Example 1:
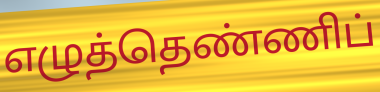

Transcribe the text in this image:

எழுத்தெண்ணிப்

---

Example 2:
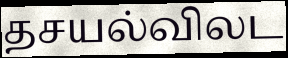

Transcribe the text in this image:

தசயல்விலட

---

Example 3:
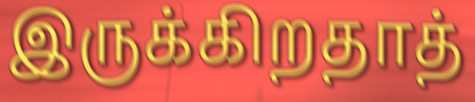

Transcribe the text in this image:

இருக்கிறதாத்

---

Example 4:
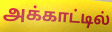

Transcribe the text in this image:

அக்காட்டில்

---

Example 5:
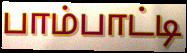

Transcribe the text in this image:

பாம்பாட்டி